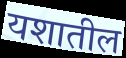
यशातील